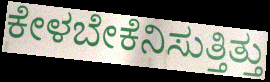
ಕೇಳಬೇಕೆನಿಸುತ್ತಿತ್ತು